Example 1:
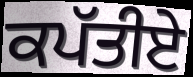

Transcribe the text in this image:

ਕਪੱਤੀਏ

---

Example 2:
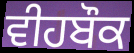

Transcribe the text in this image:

ਵੀਹਬੌਕ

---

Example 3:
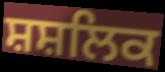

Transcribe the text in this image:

ਸ਼ਸ਼ਲਿਕ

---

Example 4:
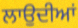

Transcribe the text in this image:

ਲਾਉਦੀਆਂ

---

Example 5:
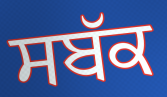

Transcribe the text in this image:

ਸਬੱਕ